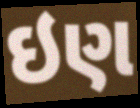
ઇણ